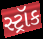
સ્ટ્રૉક